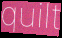
quilt